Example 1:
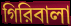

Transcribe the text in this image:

গিরিবালা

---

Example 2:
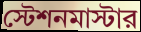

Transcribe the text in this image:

স্টেশনমাস্টার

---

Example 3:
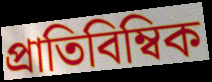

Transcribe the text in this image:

প্রাতিবিম্বিক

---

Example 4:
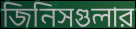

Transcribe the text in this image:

জিনিসগুলার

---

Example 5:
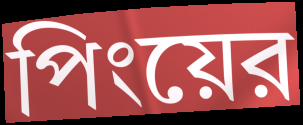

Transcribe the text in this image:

পিংয়ের